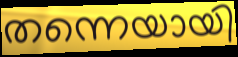
തന്നെയായി